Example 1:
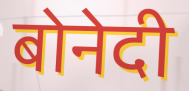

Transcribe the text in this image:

बोनेदी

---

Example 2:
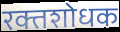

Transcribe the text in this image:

रक्तशोधक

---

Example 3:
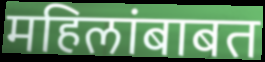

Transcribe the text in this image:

महिलांबाबत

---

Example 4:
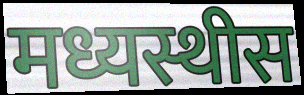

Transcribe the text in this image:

मध्यस्थीस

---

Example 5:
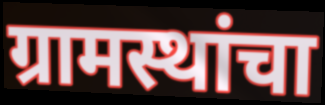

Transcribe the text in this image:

ग्रामस्थांचा